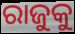
ରାଜୁକୁ